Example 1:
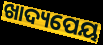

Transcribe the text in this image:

ଖାଦ୍ୟପେୟ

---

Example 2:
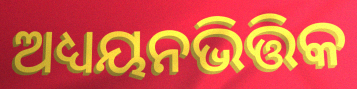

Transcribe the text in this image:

ଅଧ୍ୟୟନଭିତ୍ତିକ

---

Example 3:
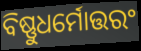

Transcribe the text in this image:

ବିଷ୍ଣୁଧର୍ମୋତ୍ତରଂ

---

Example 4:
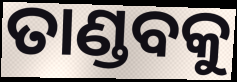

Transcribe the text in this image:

ତାଣ୍ଡବକୁ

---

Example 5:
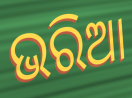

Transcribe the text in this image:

ଭରିଆ